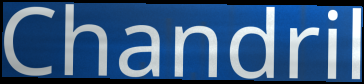
Chandril